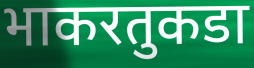
भाकरतुकडा